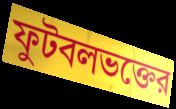
ফুটবলভক্তের